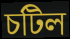
চটিল